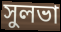
সুলভা